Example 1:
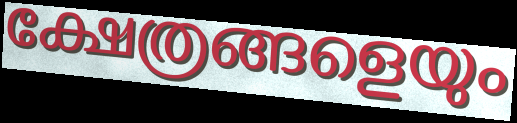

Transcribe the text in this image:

ക്ഷേത്രങ്ങളെയും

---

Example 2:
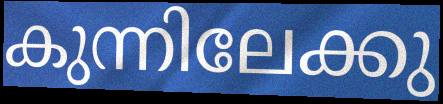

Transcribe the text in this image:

കുന്നിലേക്കു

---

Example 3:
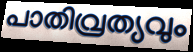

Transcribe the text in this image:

പാതിവ്രത്യവും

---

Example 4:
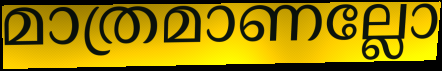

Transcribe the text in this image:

മാത്രമാണല്ലോ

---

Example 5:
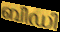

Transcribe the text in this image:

ബീഡി